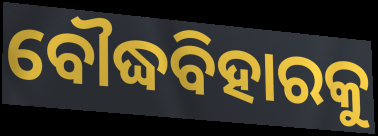
ବୌଦ୍ଧବିହାରକୁ